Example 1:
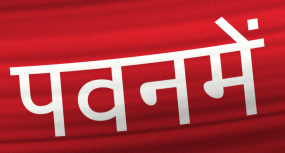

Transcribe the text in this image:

पवनमें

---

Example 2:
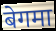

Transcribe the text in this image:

बेगमा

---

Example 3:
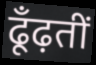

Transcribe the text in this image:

ढूँढ़तीं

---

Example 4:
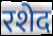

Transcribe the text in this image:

रशेद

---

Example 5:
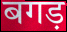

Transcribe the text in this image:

बगड़